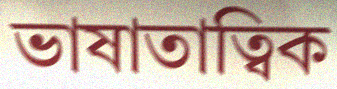
ভাষাতাত্বিক